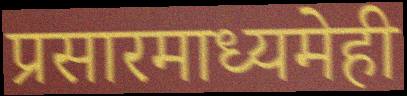
प्रसारमाध्यमेही